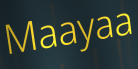
Maayaa